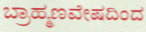
ಬ್ರಾಹ್ಮಣವೇಷದಿಂದ